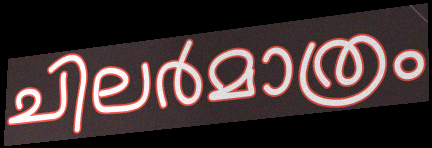
ചിലർമാത്രം